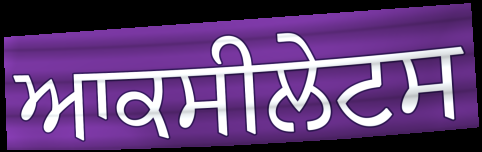
ਆਕਸੀਲੇਟਸ